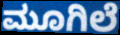
ಮೂಗಿಲೆ